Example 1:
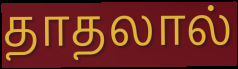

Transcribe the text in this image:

தாதலால்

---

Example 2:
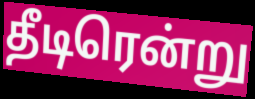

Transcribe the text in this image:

தீடிரென்று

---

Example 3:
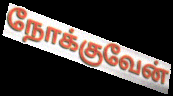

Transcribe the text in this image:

நோக்குவேன்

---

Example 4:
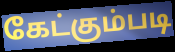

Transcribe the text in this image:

கேட்கும்படி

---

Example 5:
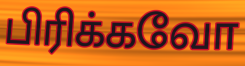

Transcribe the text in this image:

பிரிக்கவோ